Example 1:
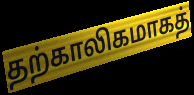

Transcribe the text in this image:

தற்காலிகமாகத்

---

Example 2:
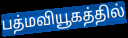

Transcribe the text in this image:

பத்மவியூகத்தில்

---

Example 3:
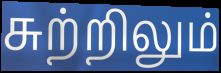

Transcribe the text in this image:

சுற்றிலும்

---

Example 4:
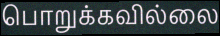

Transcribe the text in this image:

பொறுக்கவில்லை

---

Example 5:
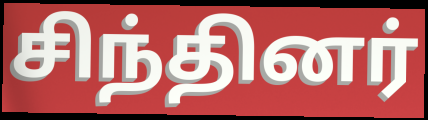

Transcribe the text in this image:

சிந்தினர்